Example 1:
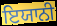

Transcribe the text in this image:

ਇਯਾਨੀ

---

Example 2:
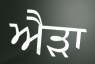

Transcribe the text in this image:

ਐੜਾ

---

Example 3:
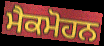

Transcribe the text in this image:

ਮੈਕਮੋਹਨ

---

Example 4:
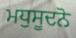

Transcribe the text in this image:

ਮਧੁਸੂਦਨੋ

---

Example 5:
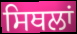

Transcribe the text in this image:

ਸਿਥਲਾਂ